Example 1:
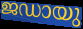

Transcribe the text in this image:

ജഡായു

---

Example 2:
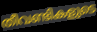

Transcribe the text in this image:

തീവണ്ടികളുടെ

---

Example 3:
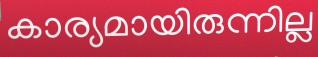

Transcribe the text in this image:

കാര്യമായിരുന്നില്ല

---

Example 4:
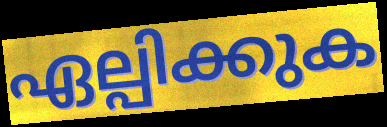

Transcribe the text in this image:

ഏല്പിക്കുക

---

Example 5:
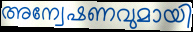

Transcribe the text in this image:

അന്വേഷണവുമായി